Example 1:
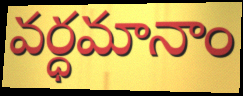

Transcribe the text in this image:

వర్ధమానాం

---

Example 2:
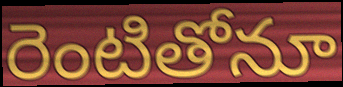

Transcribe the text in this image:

రెంటితోనూ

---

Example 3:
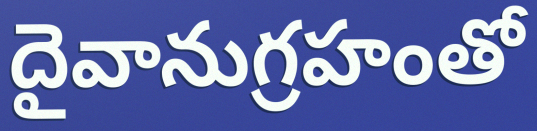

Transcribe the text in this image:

దైవానుగ్రహంతో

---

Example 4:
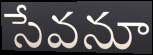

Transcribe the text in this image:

సేవనూ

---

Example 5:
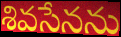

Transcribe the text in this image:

శివసేనను